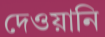
দেওয়ানি